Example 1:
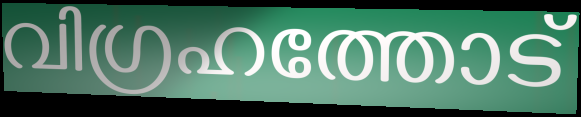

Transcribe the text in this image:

വിഗ്രഹത്തോട്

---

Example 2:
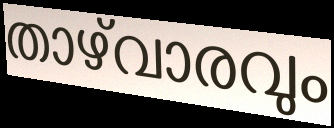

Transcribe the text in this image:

താഴ്‌വാരവും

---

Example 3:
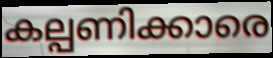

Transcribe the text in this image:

കല്പണിക്കാരെ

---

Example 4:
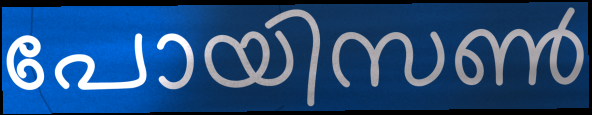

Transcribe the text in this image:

പോയിസൺ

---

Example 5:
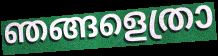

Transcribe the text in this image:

ഞങ്ങളെത്രാ